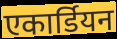
एकार्डियन